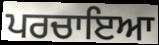
ਪਰਚਾਇਆ